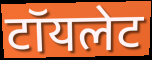
टॉयलेट